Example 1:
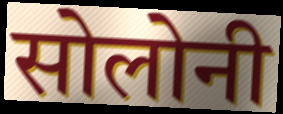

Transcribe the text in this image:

सोलोनी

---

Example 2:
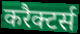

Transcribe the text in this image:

करैक्टर्स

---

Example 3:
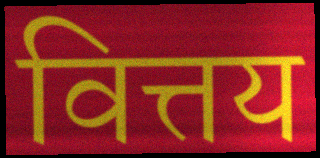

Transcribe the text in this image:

वित्तय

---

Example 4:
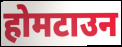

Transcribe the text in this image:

होमटाउन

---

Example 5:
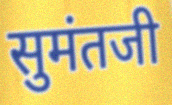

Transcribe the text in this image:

सुमंतजी